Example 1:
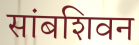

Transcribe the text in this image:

सांबशिवन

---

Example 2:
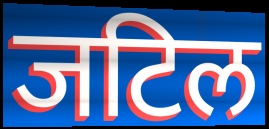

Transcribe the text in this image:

जटिल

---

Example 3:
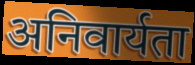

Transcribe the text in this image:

अनिवार्यता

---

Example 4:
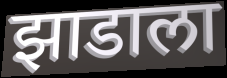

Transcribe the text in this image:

झाडाला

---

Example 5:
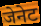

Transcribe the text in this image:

जेनेट